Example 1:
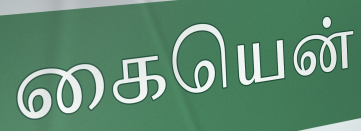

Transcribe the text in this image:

கையென்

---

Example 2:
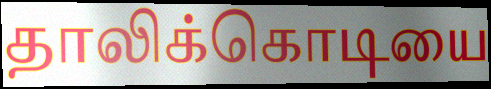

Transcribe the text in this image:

தாலிக்கொடியை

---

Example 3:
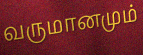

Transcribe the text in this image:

வருமானமும்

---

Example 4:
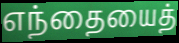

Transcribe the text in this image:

எந்தையைத்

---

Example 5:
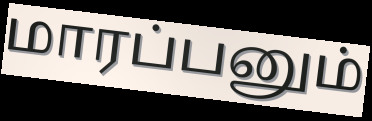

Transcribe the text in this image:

மாரப்பனும்